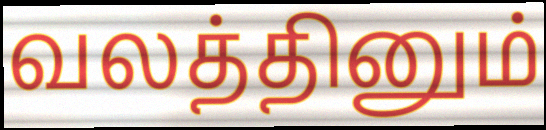
வலத்தினும்